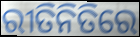
ରୀତିନିତିରେ